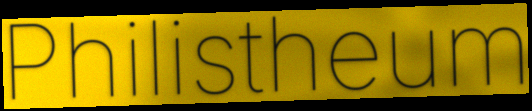
Philistheum